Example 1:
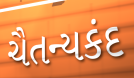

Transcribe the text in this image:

ચૈતન્યકંદ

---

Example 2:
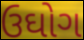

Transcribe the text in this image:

ઉઘોગ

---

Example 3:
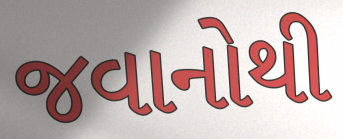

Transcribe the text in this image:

જવાનોથી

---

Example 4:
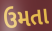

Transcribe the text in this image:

ઉમતા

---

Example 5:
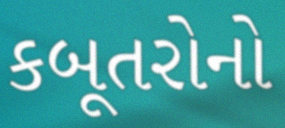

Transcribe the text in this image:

કબૂતરોનો